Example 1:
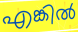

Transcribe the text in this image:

എങ്കിൽ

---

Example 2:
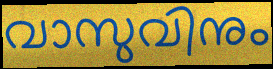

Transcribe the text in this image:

വാസുവിനും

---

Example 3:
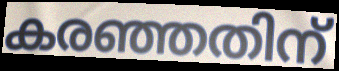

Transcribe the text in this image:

കരഞ്ഞതിന്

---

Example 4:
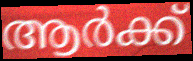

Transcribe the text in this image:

ആർക്ക്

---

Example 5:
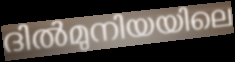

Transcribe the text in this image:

ദിൽമുനിയയിലെ